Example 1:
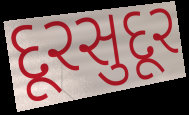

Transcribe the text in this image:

દૂરસુદૂર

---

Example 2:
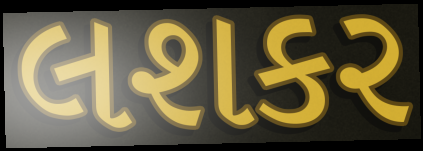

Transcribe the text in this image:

લશકર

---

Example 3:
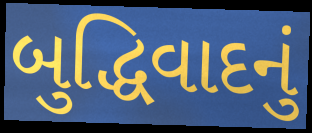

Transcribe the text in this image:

બુદ્ધિવાદનું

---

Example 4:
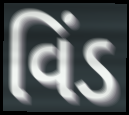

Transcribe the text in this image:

વિંડ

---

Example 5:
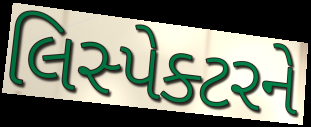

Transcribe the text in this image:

લિસ્પેક્ટરને